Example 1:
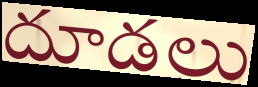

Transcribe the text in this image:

దూడలు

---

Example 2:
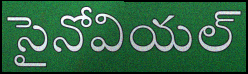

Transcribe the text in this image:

సైనోవియల్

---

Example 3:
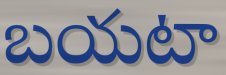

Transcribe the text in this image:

బయటా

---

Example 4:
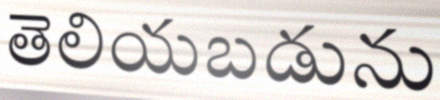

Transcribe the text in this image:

తెలియబడును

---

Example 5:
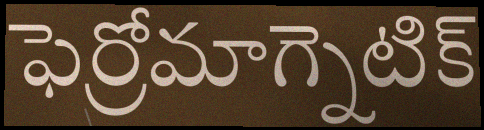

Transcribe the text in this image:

ఫెర్రోమాగ్నెటిక్